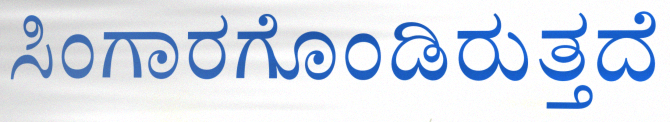
ಸಿಂಗಾರಗೊಂಡಿರುತ್ತದೆ